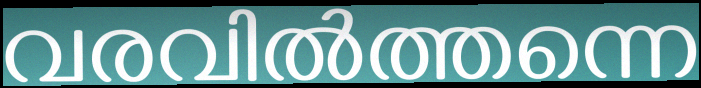
വരവിൽത്തന്നെ